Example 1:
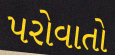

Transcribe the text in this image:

પરોવાતો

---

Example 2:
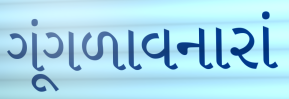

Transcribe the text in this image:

ગૂંગળાવનારાં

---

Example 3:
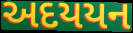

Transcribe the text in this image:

અદયયન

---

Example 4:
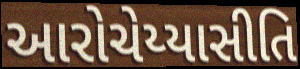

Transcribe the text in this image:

આરોચેય્યાસીતિ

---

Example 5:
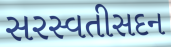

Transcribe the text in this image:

સરસ્વતીસદન